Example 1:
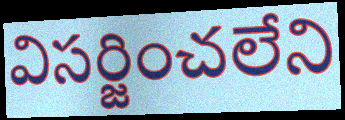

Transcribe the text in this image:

విసర్జించలేని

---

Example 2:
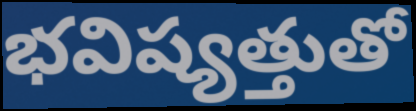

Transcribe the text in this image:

భవిష్యత్తుతో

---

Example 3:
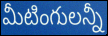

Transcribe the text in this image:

మీటింగులన్నీ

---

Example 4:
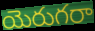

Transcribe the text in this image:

యెరుగరా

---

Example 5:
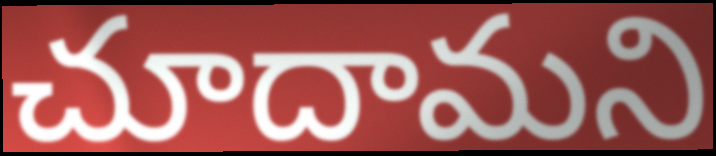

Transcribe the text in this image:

చూదామని